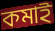
কমাই